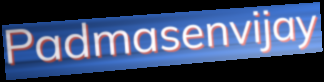
Padmasenvijay